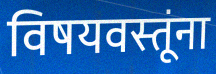
विषयवस्तूंना